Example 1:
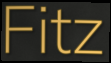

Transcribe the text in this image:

Fitz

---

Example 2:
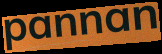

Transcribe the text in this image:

pannan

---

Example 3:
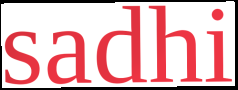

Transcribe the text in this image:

sadhi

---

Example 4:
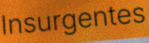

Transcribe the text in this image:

Insurgentes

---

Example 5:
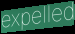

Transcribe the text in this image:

expelled